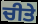
ਚੀਤੇ